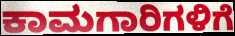
ಕಾಮಗಾರಿಗಳಿಗೆ